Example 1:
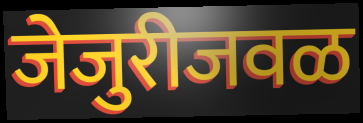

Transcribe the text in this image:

जेजुरीजवळ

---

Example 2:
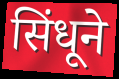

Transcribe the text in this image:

सिंधूने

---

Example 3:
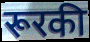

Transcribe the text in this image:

रूरकी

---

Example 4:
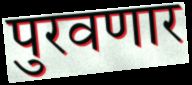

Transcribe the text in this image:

पुरवणार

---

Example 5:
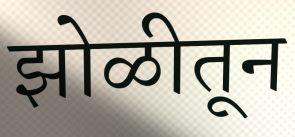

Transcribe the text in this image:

झोळीतून